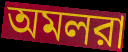
অমলরা